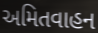
અમિતવાહન